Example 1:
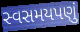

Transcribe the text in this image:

સ્વસમયપણું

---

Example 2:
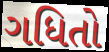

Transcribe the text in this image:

ગધિતો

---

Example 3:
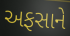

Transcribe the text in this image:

અફસાને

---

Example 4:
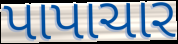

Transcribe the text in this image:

પાપાચાર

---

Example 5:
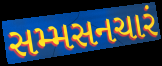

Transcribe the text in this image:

સમ્મસનચારં